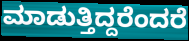
ಮಾಡುತ್ತಿದ್ದರೆಂದರೆ